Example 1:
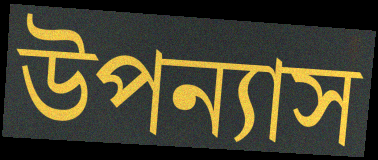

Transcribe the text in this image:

উপন্যাস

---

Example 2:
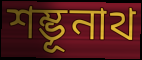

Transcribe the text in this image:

শম্ভূনাথ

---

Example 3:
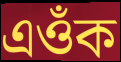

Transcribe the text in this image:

এওঁক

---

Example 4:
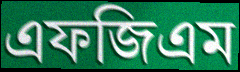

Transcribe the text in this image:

এফজিএম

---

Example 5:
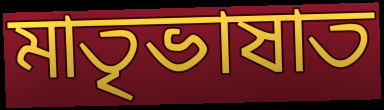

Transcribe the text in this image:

মাতৃভাষাত